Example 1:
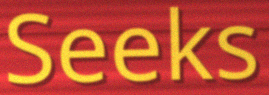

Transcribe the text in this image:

Seeks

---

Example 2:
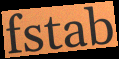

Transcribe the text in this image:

fstab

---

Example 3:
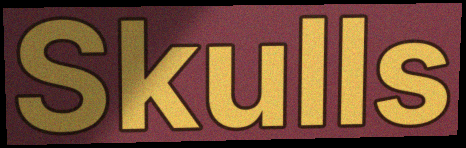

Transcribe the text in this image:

Skulls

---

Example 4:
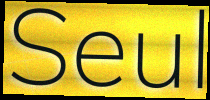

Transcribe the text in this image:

Seul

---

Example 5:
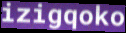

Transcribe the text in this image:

izigqoko